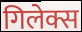
गिलेक्स